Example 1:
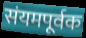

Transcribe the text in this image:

संयमपूर्वक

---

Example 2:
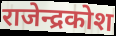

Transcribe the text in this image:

राजेन्द्रकोश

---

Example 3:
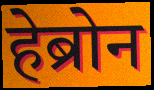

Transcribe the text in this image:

हेब्रोन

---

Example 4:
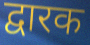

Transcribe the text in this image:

द्वारक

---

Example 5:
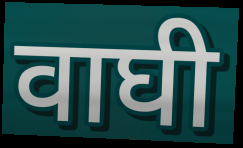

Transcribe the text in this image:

वाघी